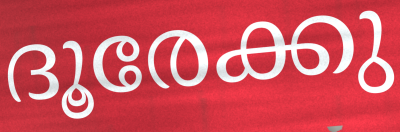
ദൂരേക്കു